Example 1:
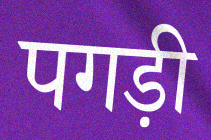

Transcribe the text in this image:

पगड़ी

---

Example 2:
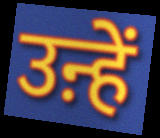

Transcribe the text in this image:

उऩ्हें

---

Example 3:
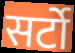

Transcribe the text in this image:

सर्टो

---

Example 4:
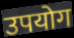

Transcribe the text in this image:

उपयोग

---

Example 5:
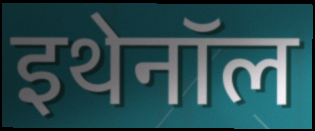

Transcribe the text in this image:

इथेनॉल